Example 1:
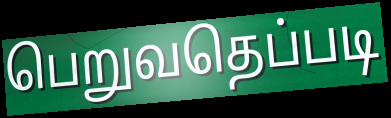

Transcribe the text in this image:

பெறுவதெப்படி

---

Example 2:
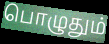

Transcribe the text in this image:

பொழுதும்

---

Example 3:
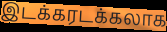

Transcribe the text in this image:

இடக்கரடக்கலாக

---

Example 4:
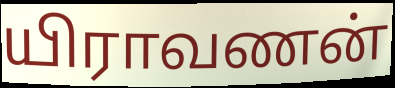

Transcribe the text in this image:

யிராவணன்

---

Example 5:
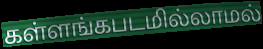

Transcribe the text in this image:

கள்ளங்கபடமில்லாமல்